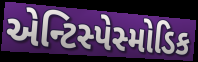
એન્ટિસ્પેસ્મોડિક